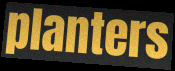
planters